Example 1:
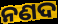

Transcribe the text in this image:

ନଣଦ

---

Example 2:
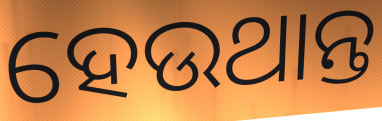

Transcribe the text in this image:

ହେଉଥାନ୍ତ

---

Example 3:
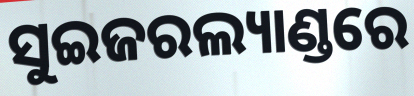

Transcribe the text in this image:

ସୁଇଜରଲ୍ୟାଣ୍ଡରେ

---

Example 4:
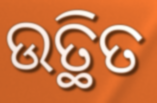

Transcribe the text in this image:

ଉତ୍ଥିତ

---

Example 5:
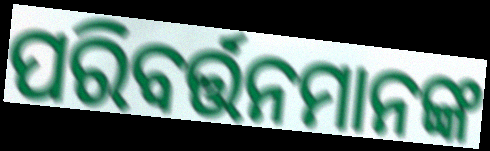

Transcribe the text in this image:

ପରିବର୍ତ୍ତନମାନଙ୍କ